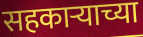
सहकार्‍याच्या